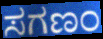
ಸಗಣಂ